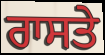
ਰਾਸਤੇ